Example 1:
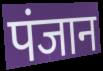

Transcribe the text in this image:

पंजान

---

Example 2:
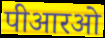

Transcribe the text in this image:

पीआरओ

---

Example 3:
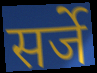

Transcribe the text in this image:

सर्जे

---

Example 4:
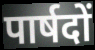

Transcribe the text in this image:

पार्षदों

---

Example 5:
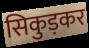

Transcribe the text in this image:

सिकुड़कर